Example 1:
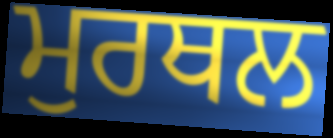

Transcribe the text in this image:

ਮੁਰਥਲ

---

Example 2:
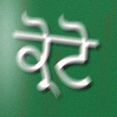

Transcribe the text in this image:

ਕ੍ਰੋਟੋ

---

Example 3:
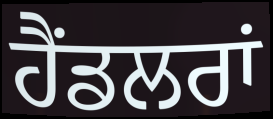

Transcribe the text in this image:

ਹੈਂਡਲਰਾਂ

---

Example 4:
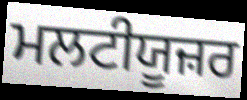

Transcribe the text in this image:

ਮਲਟੀਯੂਜ਼ਰ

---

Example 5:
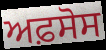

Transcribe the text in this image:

ਅਫ਼ਸੋਸ